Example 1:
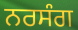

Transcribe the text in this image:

ਨਰਸੰਗ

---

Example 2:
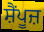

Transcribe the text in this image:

ਸ਼ੈਂਪੂਜ਼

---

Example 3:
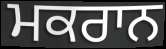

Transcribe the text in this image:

ਮਕਰਾਨ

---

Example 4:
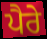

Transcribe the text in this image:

ਪੈਰੇ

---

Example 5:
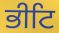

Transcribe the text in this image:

ਭੀਟਿ